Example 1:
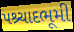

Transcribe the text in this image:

પશ્ર્ચાદભૂમી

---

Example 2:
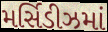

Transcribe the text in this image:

મર્સિડીઝમાં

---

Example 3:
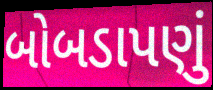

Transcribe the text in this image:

બોબડાપણું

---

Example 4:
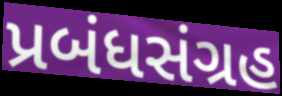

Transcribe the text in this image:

પ્રબંધસંગ્રહ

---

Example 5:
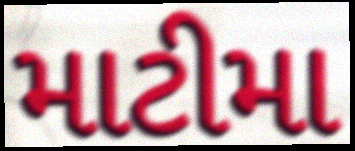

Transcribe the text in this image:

માટીમા